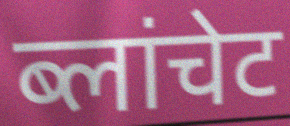
ब्लांचेट